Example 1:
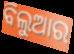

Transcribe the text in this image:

ବିଲୁଆର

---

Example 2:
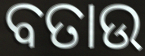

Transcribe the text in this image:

ବତାଉ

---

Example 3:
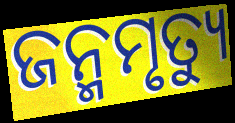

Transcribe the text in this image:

ଜନ୍ମମୃତ୍ୟୁ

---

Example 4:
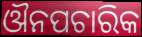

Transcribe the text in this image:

ଔନପଚାରିକ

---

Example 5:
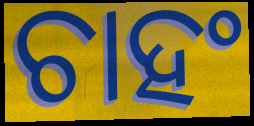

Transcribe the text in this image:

ଚାହଂ